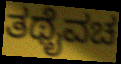
ತಥೈವಚ